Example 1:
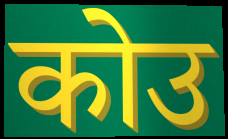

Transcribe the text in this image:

कोउ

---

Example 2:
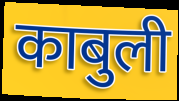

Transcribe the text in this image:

काबुली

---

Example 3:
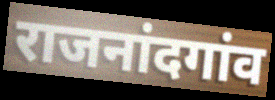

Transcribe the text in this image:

राजनांदगांव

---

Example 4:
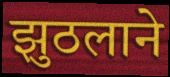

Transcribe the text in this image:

झुठलाने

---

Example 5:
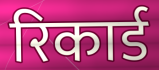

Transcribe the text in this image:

रिकार्ड